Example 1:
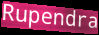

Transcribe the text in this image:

Rupendra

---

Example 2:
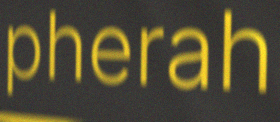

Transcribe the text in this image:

pherah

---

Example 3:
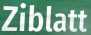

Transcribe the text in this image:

Ziblatt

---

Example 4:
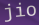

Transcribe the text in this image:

jio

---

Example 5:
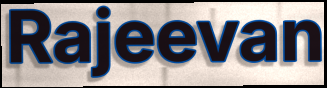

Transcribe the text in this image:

Rajeevan